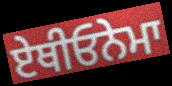
ਏਥੀਓਨੇਮਾ